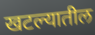
खटल्यातील